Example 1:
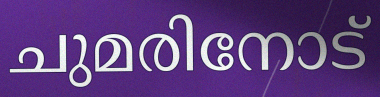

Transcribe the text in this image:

ചുമരിനോട്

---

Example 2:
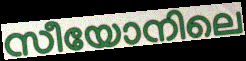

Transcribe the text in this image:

സീയോനിലെ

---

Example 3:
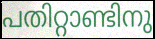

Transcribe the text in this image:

പതിറ്റാണ്ടിനു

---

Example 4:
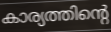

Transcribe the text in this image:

കാര്യത്തിന്റെ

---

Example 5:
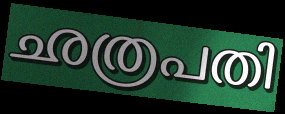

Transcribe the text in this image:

ഛത്രപതി